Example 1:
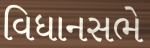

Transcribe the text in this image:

વિધાનસભે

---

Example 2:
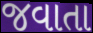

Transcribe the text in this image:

જવાતા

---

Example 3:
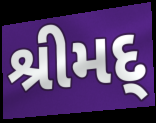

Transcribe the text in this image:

શ્રીમદ્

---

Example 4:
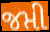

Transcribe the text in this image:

જપ્તી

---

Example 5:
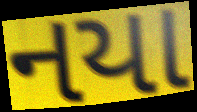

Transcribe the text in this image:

નયા